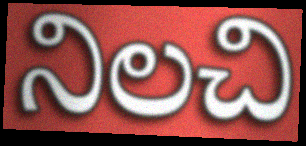
నిలచి